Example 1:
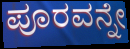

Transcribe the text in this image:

ಪೂರವನ್ನೇ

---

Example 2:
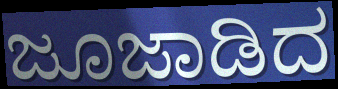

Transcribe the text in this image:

ಜೂಜಾಡಿದ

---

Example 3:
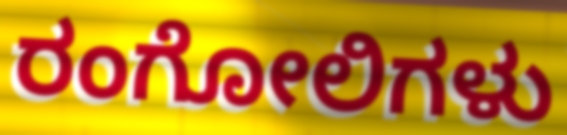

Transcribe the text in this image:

ರಂಗೋಲಿಗಳು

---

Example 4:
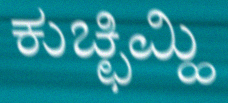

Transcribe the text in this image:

ಕುಚ್ಛಿಮ್ಹಿ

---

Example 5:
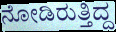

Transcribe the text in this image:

ನೋಡಿರುತ್ತಿದ್ದ